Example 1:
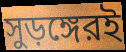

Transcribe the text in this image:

সুড়ঙ্গেরই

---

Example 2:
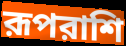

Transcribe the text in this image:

রূপরাশি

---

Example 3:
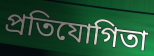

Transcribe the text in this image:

প্রতিযোগিতা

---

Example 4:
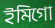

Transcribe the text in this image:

ইমিগো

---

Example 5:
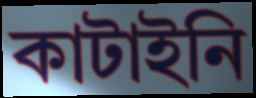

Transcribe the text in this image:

কাটাইনি